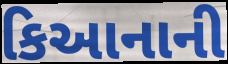
કિઆનાની